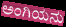
ಅಂಗಿಯನು